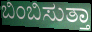
ಬಿಂಬಿಸುತ್ತಾ